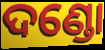
ଦଣ୍ଡୋ